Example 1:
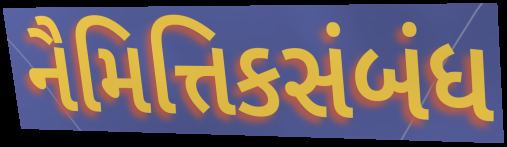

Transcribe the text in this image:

નૈમિત્તિકસંબંધ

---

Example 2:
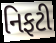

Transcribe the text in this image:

નિફટી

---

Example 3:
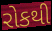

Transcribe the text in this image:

રોકથી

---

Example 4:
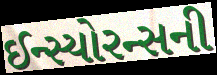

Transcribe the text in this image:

ઈન્સ્યોરન્સની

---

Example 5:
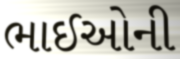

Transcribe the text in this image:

ભાઈઓની